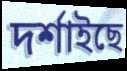
দৰ্শাইছে